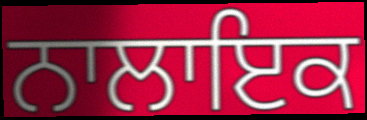
ਨਾਲਾਇਕ